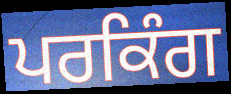
ਪਰਕਿੰਗ